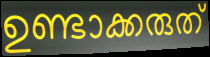
ഉണ്ടാക്കരുത്